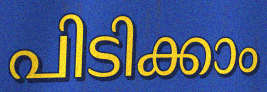
പിടിക്കാം